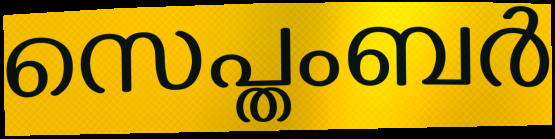
സെപ്തംബർ